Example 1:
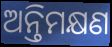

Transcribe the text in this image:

ଅନ୍ତିମକ୍ଷଣ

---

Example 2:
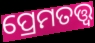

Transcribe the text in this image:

ପ୍ରେମତତ୍ତ୍ୱ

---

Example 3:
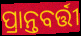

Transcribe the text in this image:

ପ୍ରାନ୍ତବର୍ତ୍ତୀ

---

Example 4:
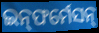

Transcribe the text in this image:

ଇନ୍‍ଫର୍ମେସନ୍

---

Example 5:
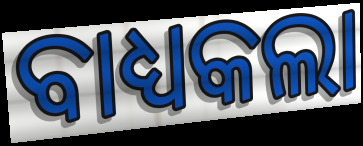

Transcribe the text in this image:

ବାଧ୍ୟକଲା